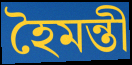
হৈমন্তী